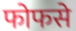
फोफसे